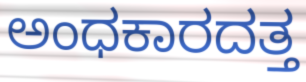
ಅಂಧಕಾರದತ್ತ